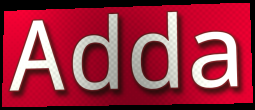
Adda